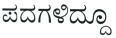
ಪದಗಳಿದ್ದೂ